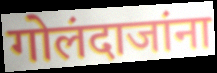
गोलंदाजांना